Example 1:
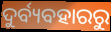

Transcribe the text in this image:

ଦୁର୍ବ୍ୟବହାରରୁ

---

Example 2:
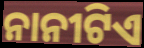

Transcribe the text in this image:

ନାନୀଟିଏ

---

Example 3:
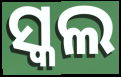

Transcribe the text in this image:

ସ୍କଲ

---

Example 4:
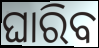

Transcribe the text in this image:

ଘାରିବ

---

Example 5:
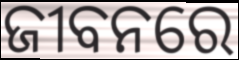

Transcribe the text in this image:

ଜୀବନରେ